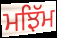
ਮਝਿੱਮ